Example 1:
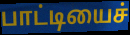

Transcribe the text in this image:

பாட்டியைச்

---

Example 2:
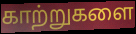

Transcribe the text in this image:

காற்றுகளை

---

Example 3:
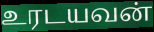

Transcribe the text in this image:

உரடயவன்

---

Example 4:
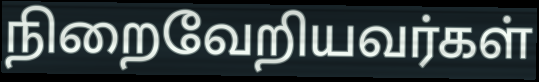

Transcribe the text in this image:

நிறைவேறியவர்கள்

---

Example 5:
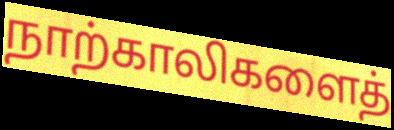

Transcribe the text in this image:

நாற்காலிகளைத்